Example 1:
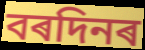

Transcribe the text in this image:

বৰদিনৰ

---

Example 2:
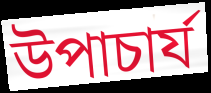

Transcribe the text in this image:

উপাচাৰ্য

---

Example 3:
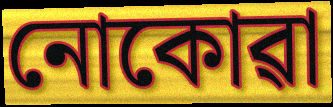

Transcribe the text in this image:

নোকোৱা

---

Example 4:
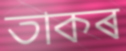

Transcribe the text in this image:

তাকৰ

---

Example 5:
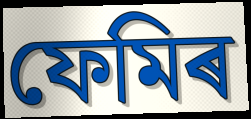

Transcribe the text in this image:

ফেমিৰ